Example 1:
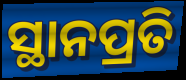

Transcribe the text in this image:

ସ୍ଥାନପ୍ରତି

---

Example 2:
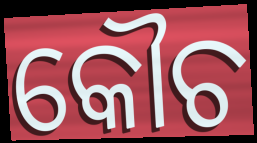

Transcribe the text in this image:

କୌଚ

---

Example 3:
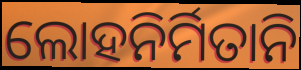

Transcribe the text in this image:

ଲୋହନିର୍ମିତାନି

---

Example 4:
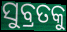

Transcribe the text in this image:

ସୁବ୍ରତକୁ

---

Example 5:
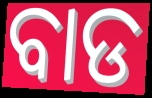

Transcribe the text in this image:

ବାଡ